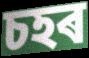
চহৰ